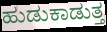
ಹುಡುಕಾಡುತ್ತ